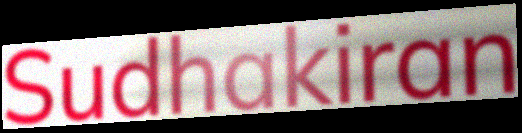
Sudhakiran